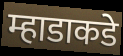
म्हाडाकडे